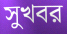
সুখবর